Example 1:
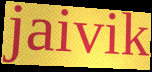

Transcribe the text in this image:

jaivik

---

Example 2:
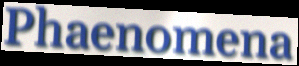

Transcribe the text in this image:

Phaenomena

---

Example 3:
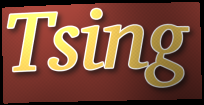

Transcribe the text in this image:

Tsing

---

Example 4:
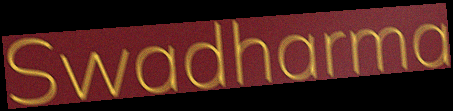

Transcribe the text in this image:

Swadharma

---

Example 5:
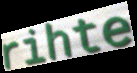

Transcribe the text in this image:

rihte